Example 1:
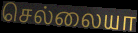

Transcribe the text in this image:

செல்லையா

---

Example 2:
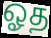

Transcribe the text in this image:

ஓத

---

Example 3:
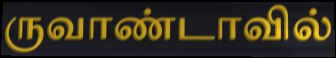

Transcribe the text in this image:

ருவாண்டாவில்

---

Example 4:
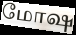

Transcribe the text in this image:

மோஷ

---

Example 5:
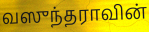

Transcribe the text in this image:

வஸுந்தராவின்